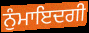
ਨੁੰਮਾਇਦਗੀ